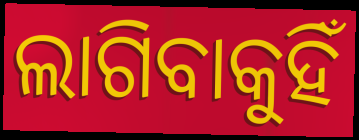
ଲାଗିବାକୁହିଁ